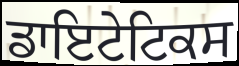
ਡਾਇਟੇਟਿਕਸ